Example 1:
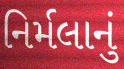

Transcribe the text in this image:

નિર્મલાનું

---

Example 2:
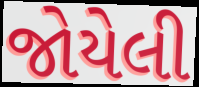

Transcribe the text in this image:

જોયેલી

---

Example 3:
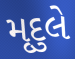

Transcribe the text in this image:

મૃદુલે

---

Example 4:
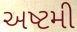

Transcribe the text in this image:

અષ્ટમી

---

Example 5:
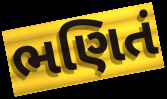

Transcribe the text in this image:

ભણિતં